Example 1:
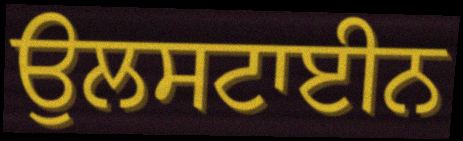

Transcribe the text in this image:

ਉਲਸਟਾਈਨ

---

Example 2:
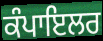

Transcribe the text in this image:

ਕੰਪਾਇਲਰ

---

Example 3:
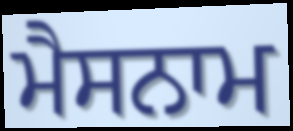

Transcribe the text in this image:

ਮੈਸਨਾਮ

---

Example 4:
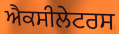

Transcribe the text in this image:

ਐਕਸੀਲੇਟਰਸ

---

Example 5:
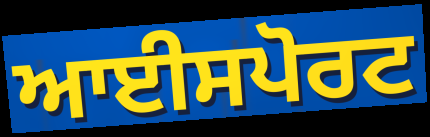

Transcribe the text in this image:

ਆਈਸਪੋਰਟ